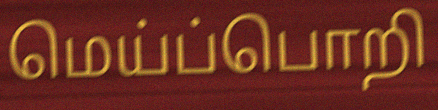
மெய்ப்பொறி